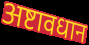
अष्टावधान